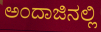
ಅಂದಾಜಿನಲ್ಲಿ